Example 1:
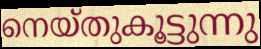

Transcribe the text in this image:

നെയ്തുകൂട്ടുന്നു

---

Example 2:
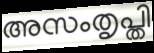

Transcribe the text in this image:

അസംതൃപ്തി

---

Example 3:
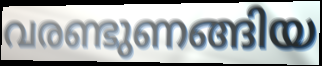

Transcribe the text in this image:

വരണ്ടുണങ്ങിയ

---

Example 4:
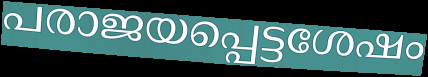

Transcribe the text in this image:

പരാജയപ്പെട്ടശേഷം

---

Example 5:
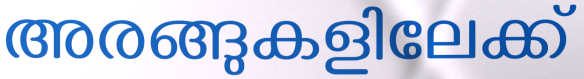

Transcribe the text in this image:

അരങ്ങുകളിലേക്ക്